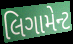
લિગામેન્ટ